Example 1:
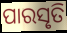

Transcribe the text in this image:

ପାରସୃତି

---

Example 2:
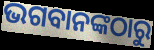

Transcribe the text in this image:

ଭଗବାନଙ୍କଠାରୁ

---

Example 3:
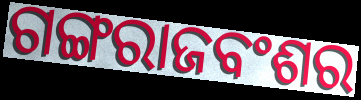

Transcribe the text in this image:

ଗଙ୍ଗରାଜବଂଶର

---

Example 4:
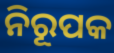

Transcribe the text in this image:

ନିରୂପକ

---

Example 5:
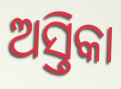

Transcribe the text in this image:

ଅସ୍ତିକା